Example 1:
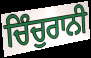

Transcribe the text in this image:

ਚਿੰਚੁਰਾਨੀ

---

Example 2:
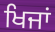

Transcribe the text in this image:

ਖਿਜਾਂ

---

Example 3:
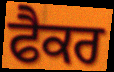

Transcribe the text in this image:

ਫੈਕਰ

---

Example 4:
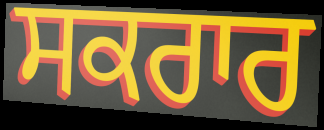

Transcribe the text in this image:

ਸਕਰਾਰ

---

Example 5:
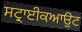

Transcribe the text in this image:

ਸਟ੍ਰਾਈਕਆਉਟ